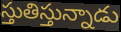
స్తుతిస్తున్నాడు